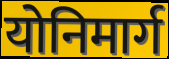
योनिमार्ग